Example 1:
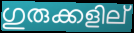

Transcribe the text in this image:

ഗുരുക്കളില്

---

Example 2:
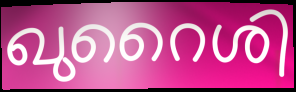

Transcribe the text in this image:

ഖുറൈശി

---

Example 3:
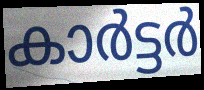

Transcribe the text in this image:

കാർട്ടർ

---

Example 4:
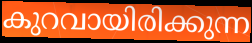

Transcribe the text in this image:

കുറവായിരിക്കുന്ന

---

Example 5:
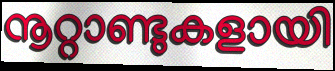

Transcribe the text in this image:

നൂറ്റാണ്ടുകളായി